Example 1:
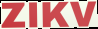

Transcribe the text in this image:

ZIKV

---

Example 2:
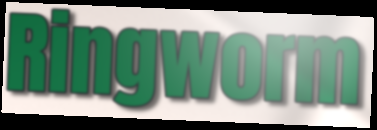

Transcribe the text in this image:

Ringworm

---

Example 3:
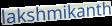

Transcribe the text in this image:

lakshmikanth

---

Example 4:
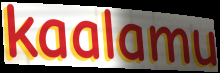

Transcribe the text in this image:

kaalamu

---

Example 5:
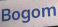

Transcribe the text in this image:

Bogom